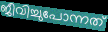
ജീവിച്ചുപോന്നത്